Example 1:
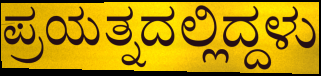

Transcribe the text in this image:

ಪ್ರಯತ್ನದಲ್ಲಿದ್ದಳು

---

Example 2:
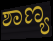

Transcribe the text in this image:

ಶಾಣ್ಯ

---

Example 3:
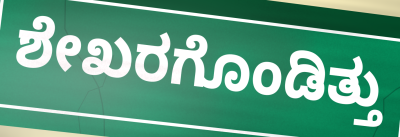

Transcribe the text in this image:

ಶೇಖರಗೊಂಡಿತ್ತು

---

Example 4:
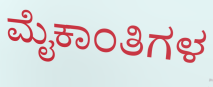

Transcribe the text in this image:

ಮೈಕಾಂತಿಗಳ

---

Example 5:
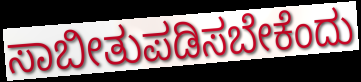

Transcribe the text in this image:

ಸಾಬೀತುಪಡಿಸಬೇಕೆಂದು